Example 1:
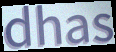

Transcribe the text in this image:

dhas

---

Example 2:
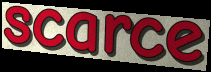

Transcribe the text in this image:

scarce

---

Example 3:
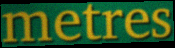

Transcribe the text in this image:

metres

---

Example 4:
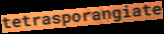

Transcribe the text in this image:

tetrasporangiate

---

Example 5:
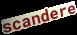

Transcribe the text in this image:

scandere